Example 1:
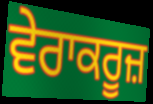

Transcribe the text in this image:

ਵੇਰਾਕਰੂਜ਼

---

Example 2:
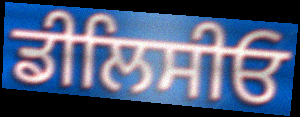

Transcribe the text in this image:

ਡੀਲਿਸੀਓ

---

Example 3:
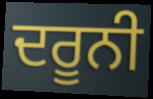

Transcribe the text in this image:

ਦਰੂਨੀ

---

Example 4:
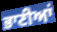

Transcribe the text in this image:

ਭਾਣੀਆਂ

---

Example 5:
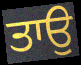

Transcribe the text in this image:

ਤਾਉ